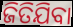
ଜିତିଯିବା